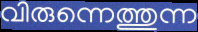
വിരുന്നെത്തുന്ന